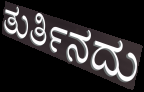
ತುರ್ತಿನದು